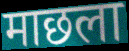
माछला